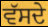
ਵੱਸਦੇ